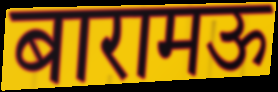
बारामऊ